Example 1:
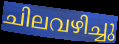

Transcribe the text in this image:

ചിലവഴിച്ചു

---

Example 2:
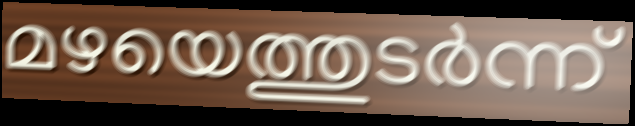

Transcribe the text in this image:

മഴയെത്തുടർന്ന്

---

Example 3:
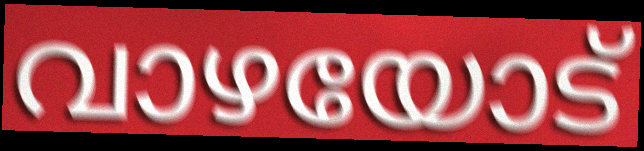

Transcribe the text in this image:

വാഴയോട്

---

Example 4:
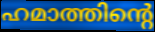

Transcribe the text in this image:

ഹമാത്തിന്റെ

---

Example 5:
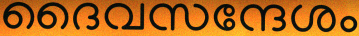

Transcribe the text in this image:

ദൈവസന്ദേശം